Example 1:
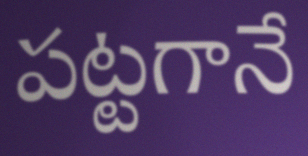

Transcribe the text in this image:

పట్టగానే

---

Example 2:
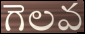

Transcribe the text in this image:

గెలవ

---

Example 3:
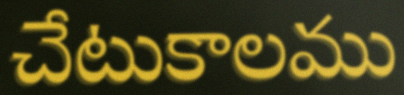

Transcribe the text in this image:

చేటుకాలము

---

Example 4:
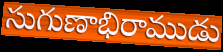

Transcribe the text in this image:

సుగుణాభిరాముడు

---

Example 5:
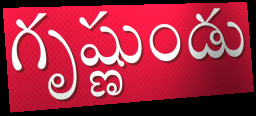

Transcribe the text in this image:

గృష్ణుండు